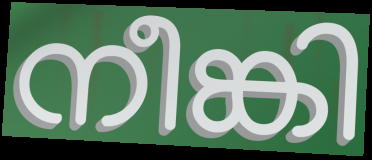
നീങ്കി